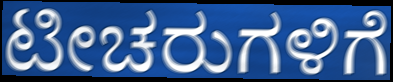
ಟೀಚರುಗಳಿಗೆ